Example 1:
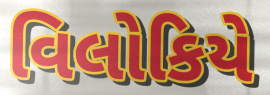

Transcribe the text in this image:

વિલોકિયે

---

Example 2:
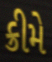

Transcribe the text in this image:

ક્રીમે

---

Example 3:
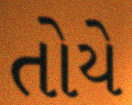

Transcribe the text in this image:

તોયે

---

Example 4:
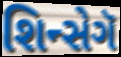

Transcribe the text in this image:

શિન્સેગૅ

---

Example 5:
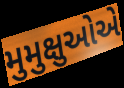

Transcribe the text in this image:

મુમુક્ષુઓએ